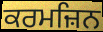
ਕਰਮਜ਼ਿਨ